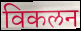
विकलन